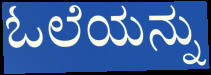
ಓಲೆಯನ್ನು